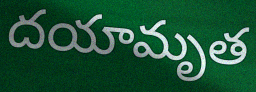
దయామృత